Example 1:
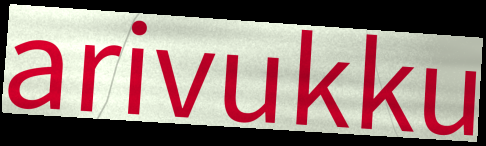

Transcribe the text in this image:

arivukku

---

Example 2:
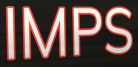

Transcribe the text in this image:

IMPS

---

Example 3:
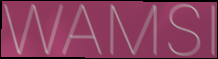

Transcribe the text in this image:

WAMSI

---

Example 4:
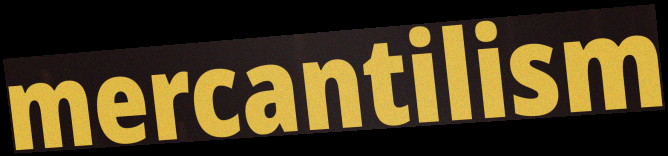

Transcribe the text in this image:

mercantilism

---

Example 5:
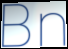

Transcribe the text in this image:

Bn